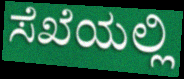
ಸೆಖೆಯಲ್ಲಿ